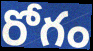
రోగం